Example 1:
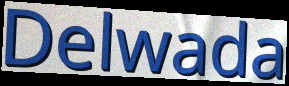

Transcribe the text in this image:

Delwada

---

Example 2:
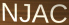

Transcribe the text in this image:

NJAC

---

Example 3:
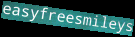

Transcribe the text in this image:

easyfreesmileys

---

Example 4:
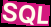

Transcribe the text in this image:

SQL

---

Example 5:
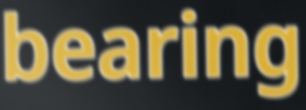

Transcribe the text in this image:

bearing